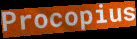
Procopius